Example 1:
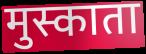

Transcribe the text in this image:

मुस्काता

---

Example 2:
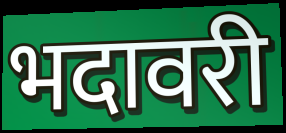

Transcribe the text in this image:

भदावरी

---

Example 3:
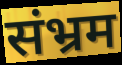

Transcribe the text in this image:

संभ्रम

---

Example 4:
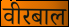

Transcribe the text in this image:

वीरबाल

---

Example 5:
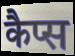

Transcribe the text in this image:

कैप्स